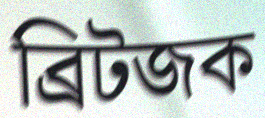
ব্রিটজক